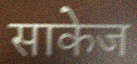
साकेज